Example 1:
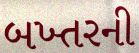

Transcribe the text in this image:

બખ્તરની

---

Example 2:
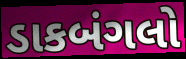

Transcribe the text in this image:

ડાકબંગલો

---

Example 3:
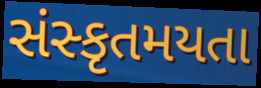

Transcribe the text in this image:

સંસ્કૃતમયતા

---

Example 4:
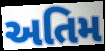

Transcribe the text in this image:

અતિમ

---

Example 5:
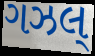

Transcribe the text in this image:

ગઝલ્